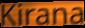
Kirana